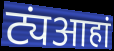
ट्यंआहां